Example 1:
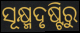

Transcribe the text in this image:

ସୂକ୍ଷ୍ମଦୃଷ୍ଟିରୁ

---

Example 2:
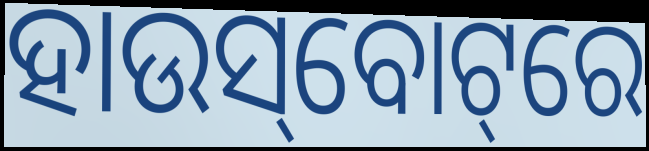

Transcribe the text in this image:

ହାଉସ୍‌ବୋଟ୍‌ରେ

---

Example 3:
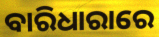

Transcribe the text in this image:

ବାରିଧାରାରେ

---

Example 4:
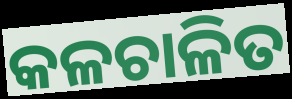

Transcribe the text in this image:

କଳଚାଳିତ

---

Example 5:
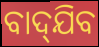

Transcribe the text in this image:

ବାଦ୍‌ଯିବ